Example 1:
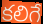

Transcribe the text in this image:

కలిగే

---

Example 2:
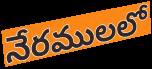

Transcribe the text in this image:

నేరములలో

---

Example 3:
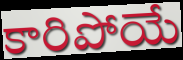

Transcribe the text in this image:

కారిపోయే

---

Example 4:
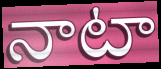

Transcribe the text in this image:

నాటా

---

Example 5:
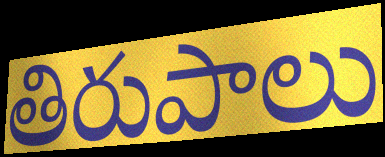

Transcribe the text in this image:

తిరుపాలు